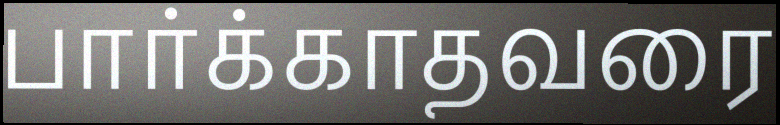
பார்க்காதவரை